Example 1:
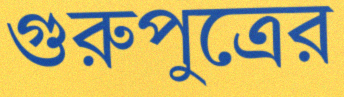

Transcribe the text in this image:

গুরুপুত্রের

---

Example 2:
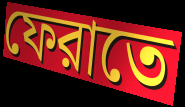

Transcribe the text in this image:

ফেরাতে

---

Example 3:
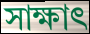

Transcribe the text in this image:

সাক্ষাৎ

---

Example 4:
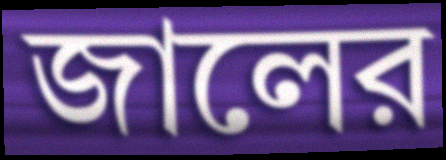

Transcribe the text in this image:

জালের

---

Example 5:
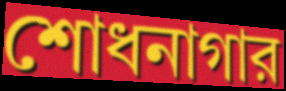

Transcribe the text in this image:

শোধনাগার